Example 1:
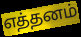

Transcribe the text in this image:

எத்தனம்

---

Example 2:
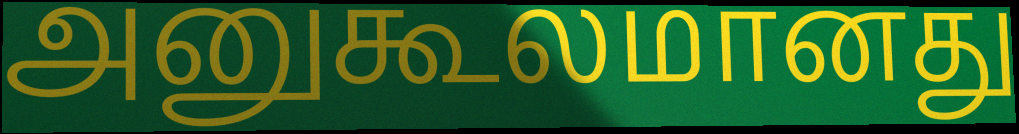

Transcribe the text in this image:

அனுகூலமானது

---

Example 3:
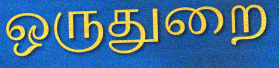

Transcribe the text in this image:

ஒருதுறை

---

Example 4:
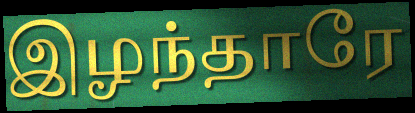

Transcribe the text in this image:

இழந்தாரே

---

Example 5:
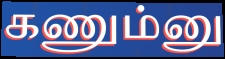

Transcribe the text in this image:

கணும்னு